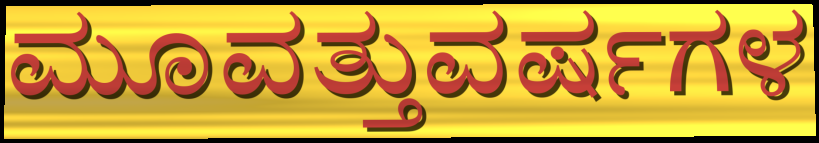
ಮೂವತ್ತುವರ್ಷಗಳ